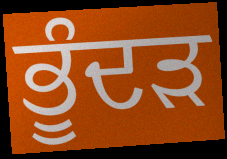
ਭੂੰਦੜ